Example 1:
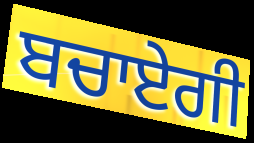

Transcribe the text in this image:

ਬਚਾਏਗੀ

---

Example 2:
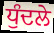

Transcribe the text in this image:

ਧੁੰਦਲੇ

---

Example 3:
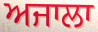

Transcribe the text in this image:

ਅਜਾਲਾ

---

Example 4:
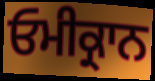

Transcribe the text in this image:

ਓਮੀਕ੍ਰਾਨ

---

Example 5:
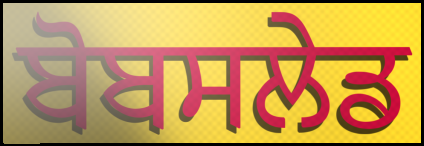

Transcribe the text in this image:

ਬੋਬਸਲੇਡ